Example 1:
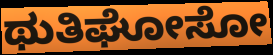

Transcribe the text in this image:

ಥುತಿಘೋಸೋ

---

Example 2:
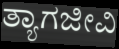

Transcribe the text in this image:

ತ್ಯಾಗಜೀವಿ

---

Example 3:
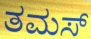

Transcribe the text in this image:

ತಮಸ್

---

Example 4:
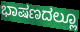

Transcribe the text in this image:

ಭಾಷಣದಲ್ಲೂ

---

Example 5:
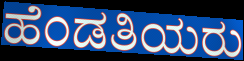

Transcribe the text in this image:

ಹೆಂಡತಿಯರು